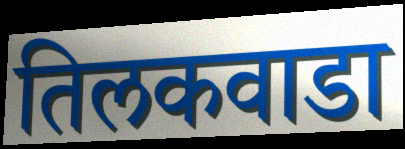
तिलकवाडा